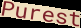
Purest